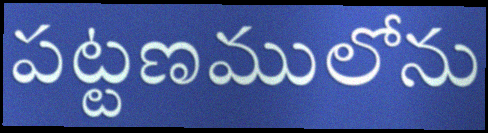
పట్టణములోను